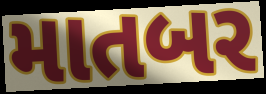
માતબર